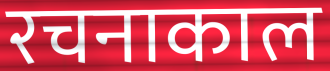
रचनाकाल